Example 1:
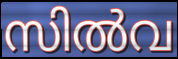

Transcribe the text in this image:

സിൽവ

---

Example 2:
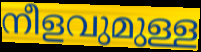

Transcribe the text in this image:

നീളവുമുള്ള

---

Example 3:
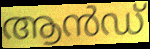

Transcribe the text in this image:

ആൻഡ്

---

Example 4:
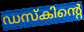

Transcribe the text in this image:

ഡസ്കിന്റെ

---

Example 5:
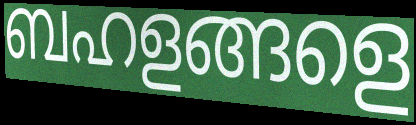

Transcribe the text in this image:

ബഹളങ്ങളെ